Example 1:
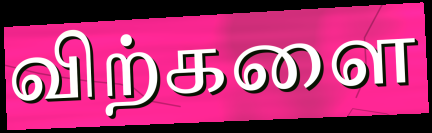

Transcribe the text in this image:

விற்களை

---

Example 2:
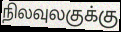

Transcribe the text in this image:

நிலவுலகுக்கு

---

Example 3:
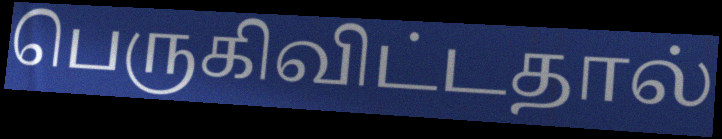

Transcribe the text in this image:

பெருகிவிட்டதால்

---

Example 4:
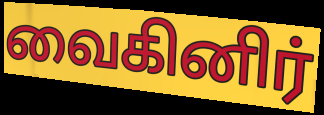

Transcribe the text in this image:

வைகினிர்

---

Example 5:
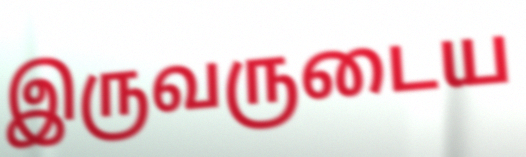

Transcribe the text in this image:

இருவருடைய